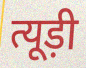
त्यूड़ी